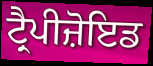
ਟ੍ਰੈਪੀਜ਼ੋਇਡ